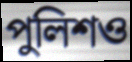
পুলিশও